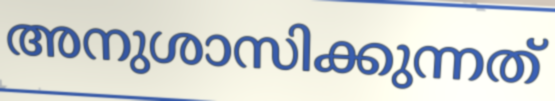
അനുശാസിക്കുന്നത്